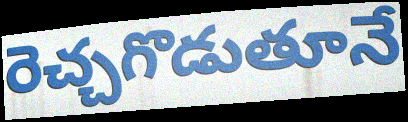
రెచ్చగొడుతూనే